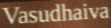
Vasudhaiva